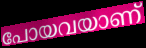
പോയവയാണ്